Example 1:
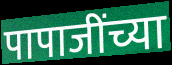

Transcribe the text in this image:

पापाजींच्या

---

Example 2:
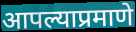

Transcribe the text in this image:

आपल्याप्रमाणे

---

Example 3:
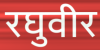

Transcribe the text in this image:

रघुवीर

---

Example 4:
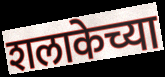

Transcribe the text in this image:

शलाकेच्या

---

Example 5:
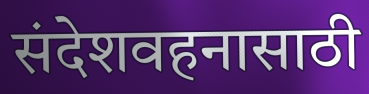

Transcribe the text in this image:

संदेशवहनासाठी